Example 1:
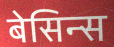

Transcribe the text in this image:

बेसिन्स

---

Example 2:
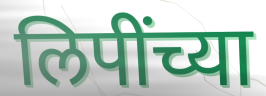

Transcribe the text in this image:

लिपींच्या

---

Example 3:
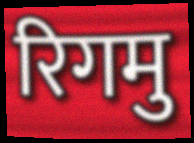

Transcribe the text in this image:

रिगमु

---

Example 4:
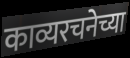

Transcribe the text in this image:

काव्यरचनेच्या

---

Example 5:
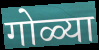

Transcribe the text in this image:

गोळ्या